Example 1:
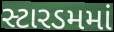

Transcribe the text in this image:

સ્ટારડમમાં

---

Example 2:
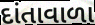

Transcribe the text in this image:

દાંતાવાળા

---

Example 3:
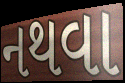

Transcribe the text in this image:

નથવા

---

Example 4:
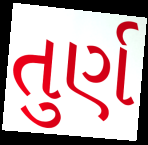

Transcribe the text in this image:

તુર્ણ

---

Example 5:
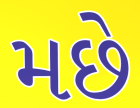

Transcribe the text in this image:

મછે